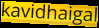
kavidhaigal